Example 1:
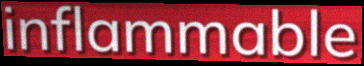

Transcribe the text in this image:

inflammable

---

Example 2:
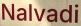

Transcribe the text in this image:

Nalvadi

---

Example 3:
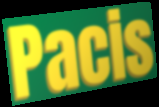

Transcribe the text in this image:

Pacis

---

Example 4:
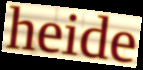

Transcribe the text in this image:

heide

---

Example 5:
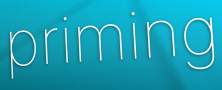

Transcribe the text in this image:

priming